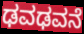
ಢವಢವನೆ